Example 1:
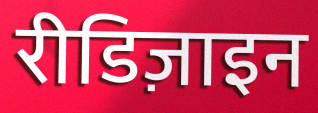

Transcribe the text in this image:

रीडिज़ाइन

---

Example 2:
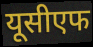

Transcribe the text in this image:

यूसीएफ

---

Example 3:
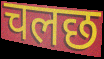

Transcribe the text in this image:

चलछ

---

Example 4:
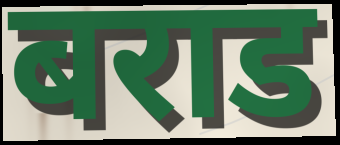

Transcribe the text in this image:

बराड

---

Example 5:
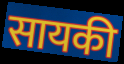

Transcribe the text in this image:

सायकी